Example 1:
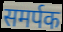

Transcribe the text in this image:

समर्पक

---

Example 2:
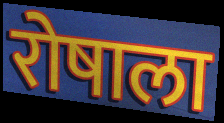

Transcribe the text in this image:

रोषाला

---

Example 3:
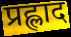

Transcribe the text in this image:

प्रह्लाद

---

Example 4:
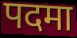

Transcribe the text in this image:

पदमा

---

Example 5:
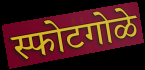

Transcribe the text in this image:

स्फोटगोळे